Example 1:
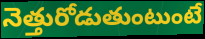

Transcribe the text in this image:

నెత్తురోడుతుంటుంటే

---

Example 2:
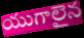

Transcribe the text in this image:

యుగాలైన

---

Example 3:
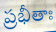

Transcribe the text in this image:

ప్రభీతాః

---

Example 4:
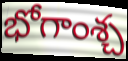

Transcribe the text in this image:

భోగాంశ్చ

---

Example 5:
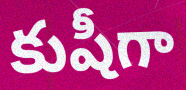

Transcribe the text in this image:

కుషీగా